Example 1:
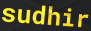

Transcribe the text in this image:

sudhir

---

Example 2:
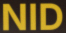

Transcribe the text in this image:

NID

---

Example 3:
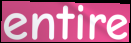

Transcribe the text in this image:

entire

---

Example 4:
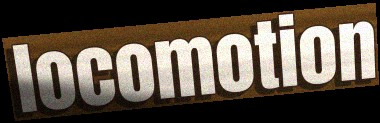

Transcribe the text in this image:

locomotion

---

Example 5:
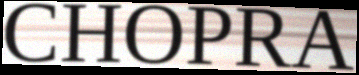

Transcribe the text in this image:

CHOPRA